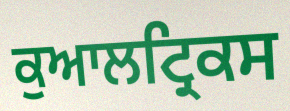
ਕੁਆਲਟ੍ਰਿਕਸ